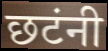
छटंनी